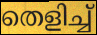
തെളിച്ച്